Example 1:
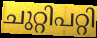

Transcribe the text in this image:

ചുറ്റിപറ്റി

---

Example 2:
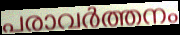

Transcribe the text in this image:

പരാവർത്തനം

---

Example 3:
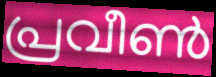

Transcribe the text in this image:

പ്രവീൺ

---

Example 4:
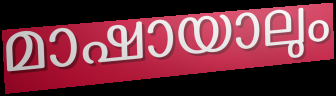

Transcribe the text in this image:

മാഷായാലും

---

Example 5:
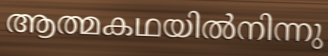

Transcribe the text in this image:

ആത്മകഥയിൽനിന്നു